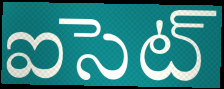
ఐసెట్